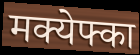
मक्येफ्का